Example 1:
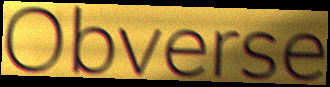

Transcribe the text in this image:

Obverse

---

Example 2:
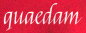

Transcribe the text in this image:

quaedam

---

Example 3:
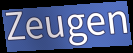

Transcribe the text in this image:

Zeugen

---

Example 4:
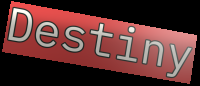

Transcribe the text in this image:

Destiny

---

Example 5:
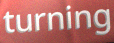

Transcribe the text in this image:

turning